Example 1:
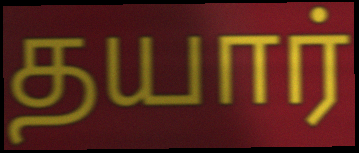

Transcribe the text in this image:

தயார்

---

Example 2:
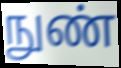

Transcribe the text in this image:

நுண்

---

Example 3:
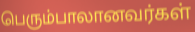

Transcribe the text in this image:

பெரும்பாலானவர்கள்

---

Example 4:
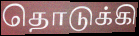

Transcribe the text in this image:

தொடுக்கி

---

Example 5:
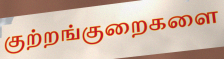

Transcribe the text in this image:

குற்றங்குறைகளை